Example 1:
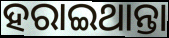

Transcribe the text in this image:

ହରାଇଥାନ୍ତା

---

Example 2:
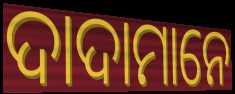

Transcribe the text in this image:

ଦାଦାମାନେ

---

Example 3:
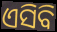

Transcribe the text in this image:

ଏସିବି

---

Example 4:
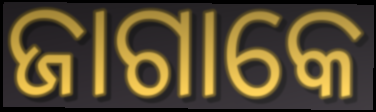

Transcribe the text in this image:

ଜାଗାକେ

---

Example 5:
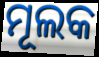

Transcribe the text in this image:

ମୂଲକ